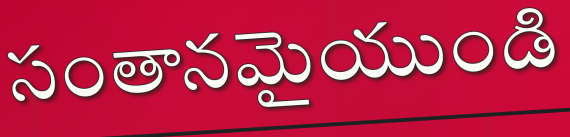
సంతానమైయుండి